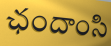
ఛందాంసి